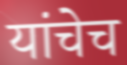
यांचेच